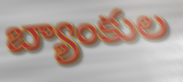
బ్యాంకుల